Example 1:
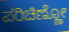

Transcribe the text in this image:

ಪರಿಚಿಣ್ಣೋ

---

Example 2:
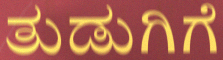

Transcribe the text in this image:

ತುಡುಗಿಗೆ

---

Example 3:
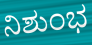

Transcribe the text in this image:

ನಿಶುಂಭ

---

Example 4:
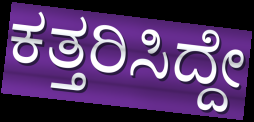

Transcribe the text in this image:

ಕತ್ತರಿಸಿದ್ದೇ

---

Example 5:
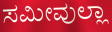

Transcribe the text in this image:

ಸಮೀವುಲ್ಲಾ